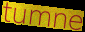
tumne